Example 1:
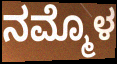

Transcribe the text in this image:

ನಮ್ಮೊಳ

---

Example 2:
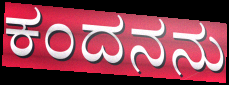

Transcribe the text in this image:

ಕಂದನನು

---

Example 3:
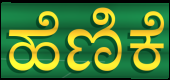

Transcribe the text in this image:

ಹೆಣಿಕೆ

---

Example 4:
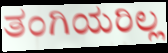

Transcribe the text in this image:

ತಂಗಿಯರಿಲ್ಲ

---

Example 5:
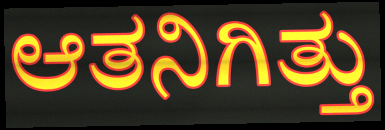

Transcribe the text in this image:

ಆತನಿಗಿತ್ತು